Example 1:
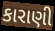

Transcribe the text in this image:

કારાણી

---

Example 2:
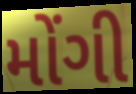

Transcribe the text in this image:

મોંગી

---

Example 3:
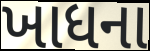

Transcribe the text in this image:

ખાધના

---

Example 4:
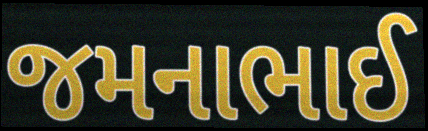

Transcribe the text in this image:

જમનાભાઈ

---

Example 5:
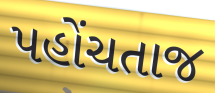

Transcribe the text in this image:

પહોંચતાજ